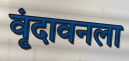
वृंदावनला